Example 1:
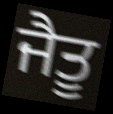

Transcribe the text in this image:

ਜੈਤੂ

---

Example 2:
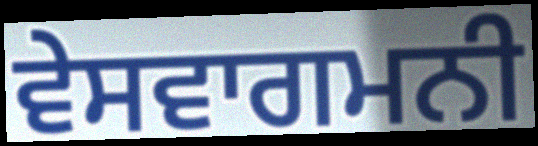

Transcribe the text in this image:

ਵੇਸਵਾਗਮਨੀ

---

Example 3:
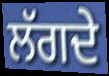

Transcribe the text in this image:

ਲੱਗਦੇ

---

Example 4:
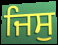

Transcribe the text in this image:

ਜਿਸੁ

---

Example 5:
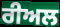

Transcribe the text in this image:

ਰੀਅਲ